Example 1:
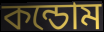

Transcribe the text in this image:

কন্ডোম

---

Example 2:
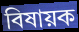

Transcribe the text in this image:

বিষায়ক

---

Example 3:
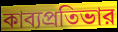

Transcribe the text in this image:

কাব্যপ্রতিভার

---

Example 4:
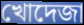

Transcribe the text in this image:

খোদেজা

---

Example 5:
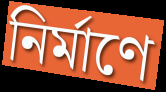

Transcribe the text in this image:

নির্মাণে